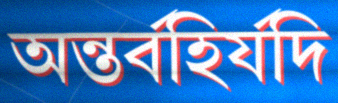
অন্তর্বহির্যদি